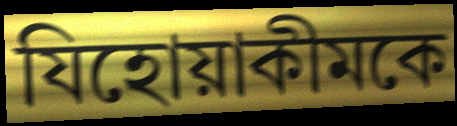
যিহোয়াকীমকে